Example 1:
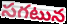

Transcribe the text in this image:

సగటున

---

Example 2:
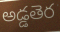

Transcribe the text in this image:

అడ్డతెర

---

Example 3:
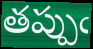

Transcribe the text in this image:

తప్పుఁ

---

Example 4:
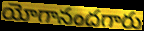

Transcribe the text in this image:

యోగానందగారు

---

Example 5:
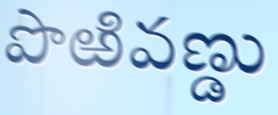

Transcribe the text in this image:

పొఱివణ్డు